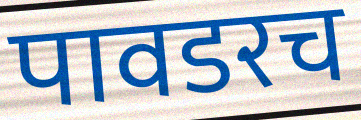
पावडरच